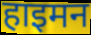
हाइमन